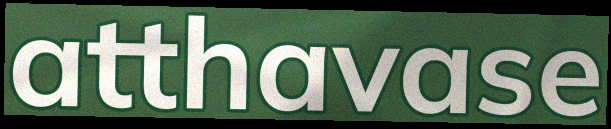
atthavase